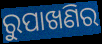
ରୁପାଖଣିର